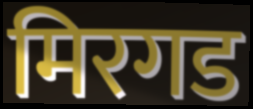
मिरगड